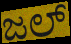
ಜಲ್